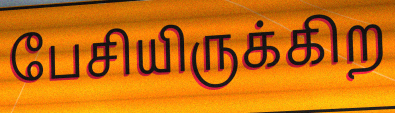
பேசியிருக்கிற